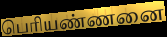
பெரியண்ணனை